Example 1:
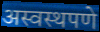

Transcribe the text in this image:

अस्वस्थपणे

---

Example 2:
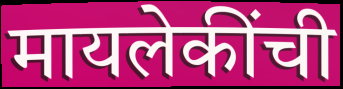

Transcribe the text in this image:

मायलेकींची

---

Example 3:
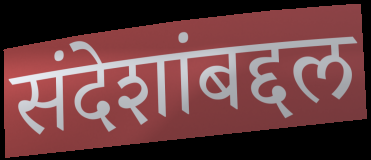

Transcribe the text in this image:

संदेशांबद्दल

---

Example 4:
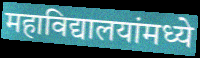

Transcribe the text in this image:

महाविद्यालयांमध्ये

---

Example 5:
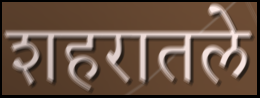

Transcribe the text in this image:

शहरातले